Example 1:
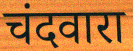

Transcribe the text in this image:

चंदवारा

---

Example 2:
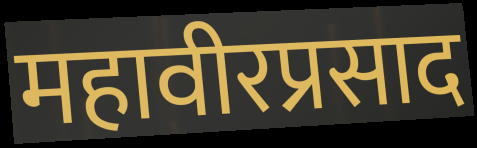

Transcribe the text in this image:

महावीरप्रसाद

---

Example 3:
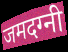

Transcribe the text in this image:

जमदग्नी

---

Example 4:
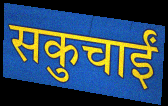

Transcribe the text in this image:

सकुचाईं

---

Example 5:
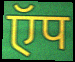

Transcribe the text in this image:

ऍप